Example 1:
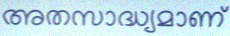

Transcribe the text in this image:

അതസാദ്ധ്യമാണ്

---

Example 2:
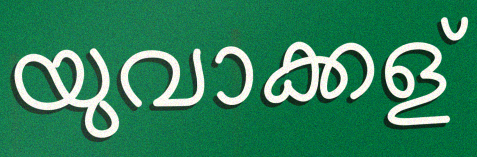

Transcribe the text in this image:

യുവാക്കള്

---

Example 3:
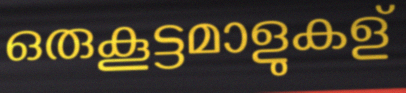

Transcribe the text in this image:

ഒരുകൂട്ടമാളുകള്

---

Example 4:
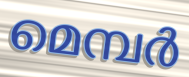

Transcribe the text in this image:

മെമ്പർ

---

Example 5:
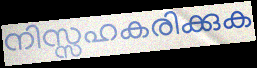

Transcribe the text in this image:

നിസ്സഹകരിക്കുക